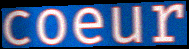
coeur